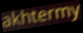
akhtermy